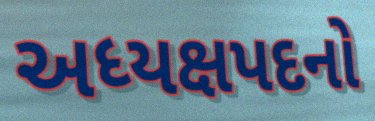
અધ્યક્ષપદનો